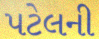
પટેલની